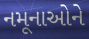
નમૂનાઓને